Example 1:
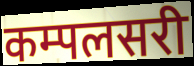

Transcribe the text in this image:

कम्पलसरी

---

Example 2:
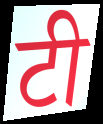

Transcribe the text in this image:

टी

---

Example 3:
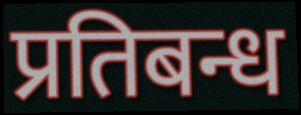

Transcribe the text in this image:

प्रतिबन्ध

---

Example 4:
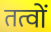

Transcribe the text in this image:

तत्वों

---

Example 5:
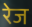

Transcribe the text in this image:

रेज